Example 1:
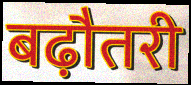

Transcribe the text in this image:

बढ़ौतरी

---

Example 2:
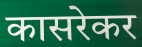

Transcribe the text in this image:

कासरेकर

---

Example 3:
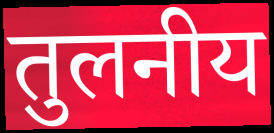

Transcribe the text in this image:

तुलनीय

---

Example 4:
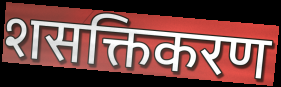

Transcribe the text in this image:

शसक्तिकरण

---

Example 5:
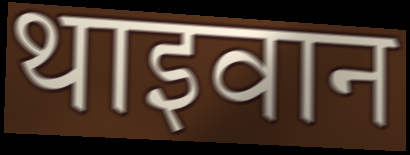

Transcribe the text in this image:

थाइवान